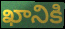
ఖానికి